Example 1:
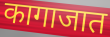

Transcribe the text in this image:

कागाजात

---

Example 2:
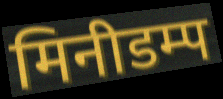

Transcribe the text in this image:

मिनीडम्प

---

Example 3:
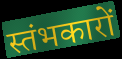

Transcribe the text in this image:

स्तंभकारों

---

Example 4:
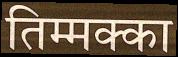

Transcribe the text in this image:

तिम्मक्का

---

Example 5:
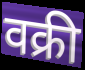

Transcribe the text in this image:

वक्री